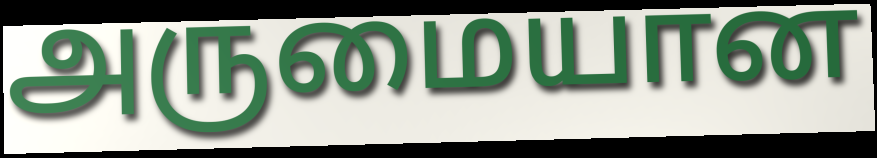
அருமையான